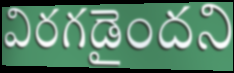
విరగడైందని